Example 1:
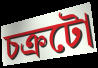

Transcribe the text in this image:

চক্ৰটো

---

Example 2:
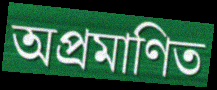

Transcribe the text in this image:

অপ্ৰমাণিত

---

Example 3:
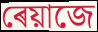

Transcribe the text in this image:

ৰেয়াজে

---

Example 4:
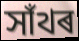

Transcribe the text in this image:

সাঁথৰ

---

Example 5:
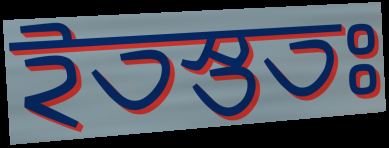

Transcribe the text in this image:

ইতস্ততঃ